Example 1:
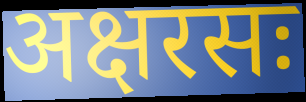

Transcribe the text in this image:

अक्षरसः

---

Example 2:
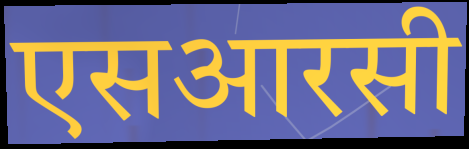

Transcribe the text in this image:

एसआरसी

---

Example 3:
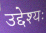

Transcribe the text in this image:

उद्देश्यः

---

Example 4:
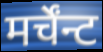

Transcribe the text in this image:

मर्चेंन्ट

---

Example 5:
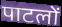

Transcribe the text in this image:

पाटलों